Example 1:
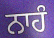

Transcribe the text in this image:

ਨਾਹੰ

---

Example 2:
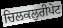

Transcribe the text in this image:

ਚਿਲਕਲੁਰੀਪੇਟ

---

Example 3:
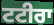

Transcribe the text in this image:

ਟਟੀਰਾ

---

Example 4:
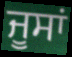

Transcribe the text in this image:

ਜੂਸਾਂ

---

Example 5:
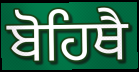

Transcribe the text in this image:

ਬੋਹਿਥੈ